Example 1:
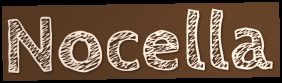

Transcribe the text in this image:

Nocella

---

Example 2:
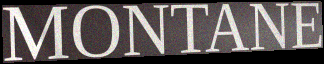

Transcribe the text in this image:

MONTANE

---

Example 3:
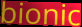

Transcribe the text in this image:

bionic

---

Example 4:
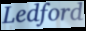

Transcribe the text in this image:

Ledford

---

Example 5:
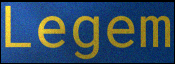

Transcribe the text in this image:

Legem